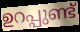
ഉറപ്പുണ്ട്